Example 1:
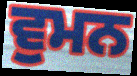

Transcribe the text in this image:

ਵੁਮਨ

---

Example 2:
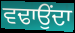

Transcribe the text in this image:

ਵਢਾਉਂਦਾ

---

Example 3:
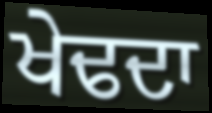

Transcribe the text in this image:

ਖੇਢਦਾ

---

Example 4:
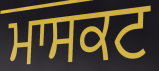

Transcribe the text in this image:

ਮਾਸਕਟ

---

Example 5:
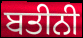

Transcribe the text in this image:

ਬਤੀਨੀ